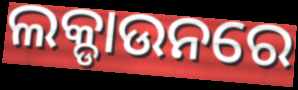
ଲକ୍ଡାଉନରେ